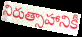
నిరుత్సాహానికీ